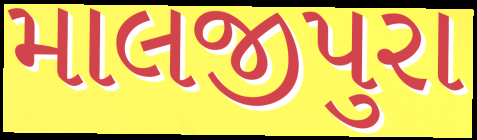
માલજીપુરા